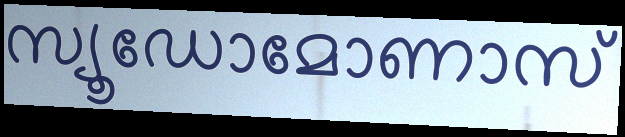
സ്യൂഡോമോണാസ്